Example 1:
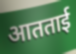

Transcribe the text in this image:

आतताई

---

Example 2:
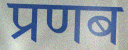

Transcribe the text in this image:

प्रणब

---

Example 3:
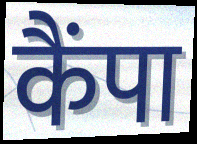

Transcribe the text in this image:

कैंपा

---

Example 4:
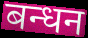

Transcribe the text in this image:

बन्धन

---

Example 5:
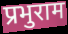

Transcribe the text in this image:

प्रभुराम